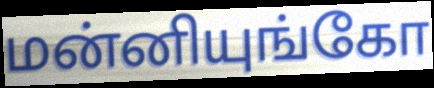
மன்னியுங்கோ